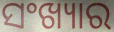
ସଂଖ୍ୟାର